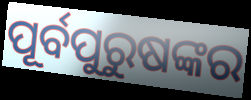
ପୂର୍ବପୁରୁଷଙ୍କର